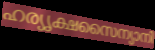
ഹര്യൃക്ഷസൈന്യാനി